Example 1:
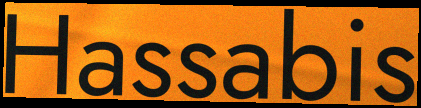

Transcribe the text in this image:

Hassabis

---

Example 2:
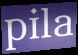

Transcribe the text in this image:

pila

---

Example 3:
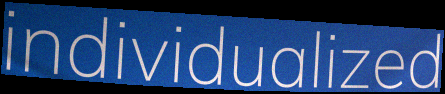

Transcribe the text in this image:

individualized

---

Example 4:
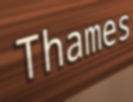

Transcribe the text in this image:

Thames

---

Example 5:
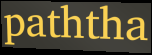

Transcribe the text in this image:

paththa